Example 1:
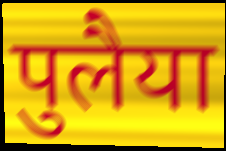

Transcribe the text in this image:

पुलैया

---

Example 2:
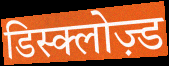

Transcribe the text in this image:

डिस्क्लोज़्ड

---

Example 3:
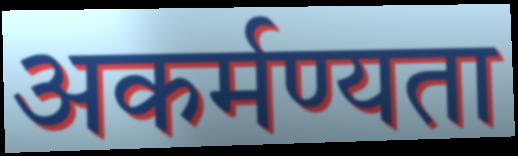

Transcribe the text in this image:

अकर्मण्यता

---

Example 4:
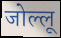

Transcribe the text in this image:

जोल्लू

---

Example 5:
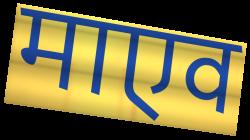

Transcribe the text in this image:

माएव